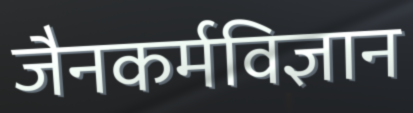
जैनकर्मविज्ञान